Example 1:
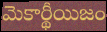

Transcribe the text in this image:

మెకార్థీయిజం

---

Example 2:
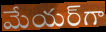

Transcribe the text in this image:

మేయర్‌గా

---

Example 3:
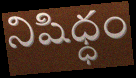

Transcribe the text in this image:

నిషిధ్ధం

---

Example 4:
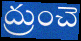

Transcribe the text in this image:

ద్రుంచె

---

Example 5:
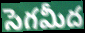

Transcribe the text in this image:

సెగమీద